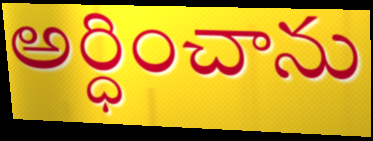
అర్ధించాను